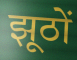
झूठों